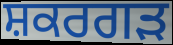
ਸ਼ਕਰਗੜ